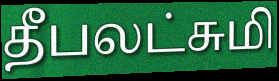
தீபலட்சுமி